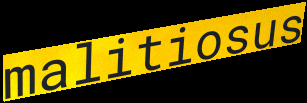
malitiosus